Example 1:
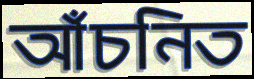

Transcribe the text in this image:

আঁচনিত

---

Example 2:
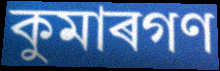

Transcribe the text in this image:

কুমাৰগণ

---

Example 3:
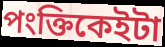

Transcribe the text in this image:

পংক্তিকেইটা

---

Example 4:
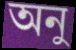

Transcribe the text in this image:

অনু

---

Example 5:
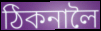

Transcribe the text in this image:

ঠিকনালৈ